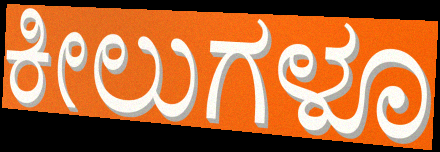
ಕೀಲುಗಳೂ